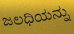
ಜಲಧಿಯನ್ನು